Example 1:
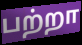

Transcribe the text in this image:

பற்றா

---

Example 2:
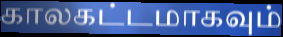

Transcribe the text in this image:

காலகட்டமாகவும்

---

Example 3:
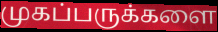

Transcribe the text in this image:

முகப்பருக்களை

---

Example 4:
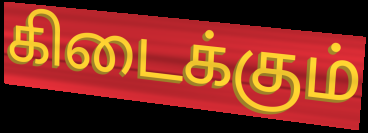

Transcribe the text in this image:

கிடைக்கும்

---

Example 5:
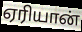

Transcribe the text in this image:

ஏரியான்